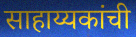
साहाय्यकांची